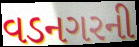
વડનગરની